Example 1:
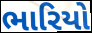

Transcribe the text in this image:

ભારિયો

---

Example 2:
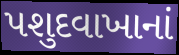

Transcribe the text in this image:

પશુદવાખાનાં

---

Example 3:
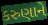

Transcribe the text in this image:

કરુણાને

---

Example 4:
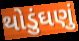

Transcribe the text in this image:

થોડુંઘણું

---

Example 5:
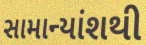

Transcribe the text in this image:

સામાન્યાંશથી